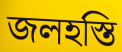
জলহস্তি